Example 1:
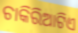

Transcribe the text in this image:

ଚାକିରିଆଟିଏ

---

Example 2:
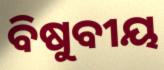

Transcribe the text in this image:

ବିଷୁବୀୟ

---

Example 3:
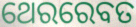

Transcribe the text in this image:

ଥେରରେବତ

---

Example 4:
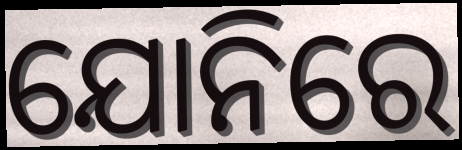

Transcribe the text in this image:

ଯୋନିରେ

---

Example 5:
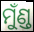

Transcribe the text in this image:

ମୁଁଣ୍ଡ